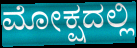
ಮೋಕ್ಷದಲ್ಲಿ